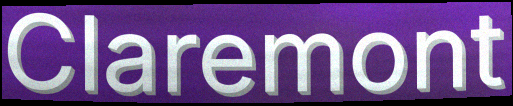
Claremont